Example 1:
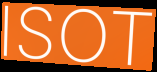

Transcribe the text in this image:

ISOT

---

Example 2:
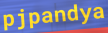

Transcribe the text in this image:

pjpandya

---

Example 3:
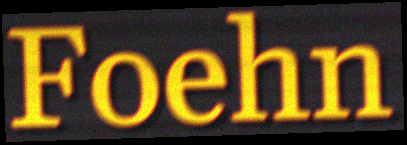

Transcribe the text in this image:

Foehn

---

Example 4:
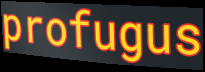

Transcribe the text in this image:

profugus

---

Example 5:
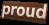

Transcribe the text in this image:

proud